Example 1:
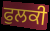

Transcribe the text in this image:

ਫੁਲਕੀ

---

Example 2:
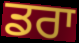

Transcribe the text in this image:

ਡਰਾ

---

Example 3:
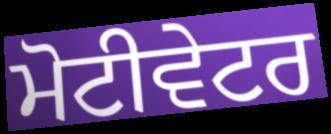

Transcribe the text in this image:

ਮੋਟੀਵੇਟਰ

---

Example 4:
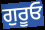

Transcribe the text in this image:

ਗੁਰੂਓ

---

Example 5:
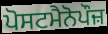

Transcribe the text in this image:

ਪੋਸਟਮੈਨੋਪੌਜ਼